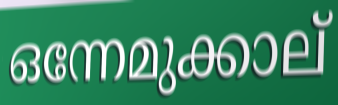
ഒന്നേമുക്കാല്